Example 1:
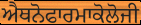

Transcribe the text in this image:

ਐਥਨੋਫਾਰਮਾਕੋਲੋਜੀ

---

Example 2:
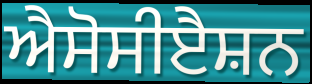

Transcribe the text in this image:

ਐਸੋਸੀੲੈਸ਼ਨ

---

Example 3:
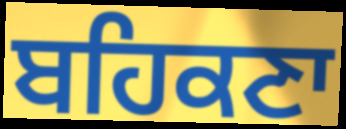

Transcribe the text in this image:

ਬਹਿਕਣਾ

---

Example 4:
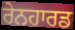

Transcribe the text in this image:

ਰੇਨਹਾਰਡ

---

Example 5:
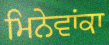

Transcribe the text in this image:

ਮਿਨੇਵਾਂਕਾ